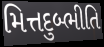
મિત્તદુબ્ભીતિ